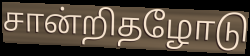
சான்றிதழோடு